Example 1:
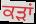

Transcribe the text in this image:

ਕੜਾਂ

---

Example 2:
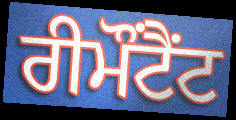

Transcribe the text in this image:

ਰੀਮੌਂਟੈਂਟ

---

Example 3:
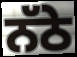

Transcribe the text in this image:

ਨੱਠੇ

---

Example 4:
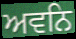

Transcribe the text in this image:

ਅਵਨਿ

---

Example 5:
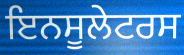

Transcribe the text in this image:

ਇਨਸੂਲੇਟਰਸ